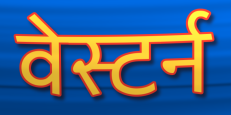
वेस्टर्न